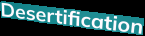
Desertification